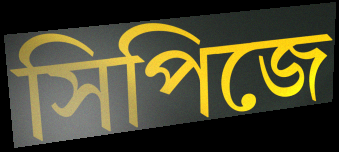
সিপিজে